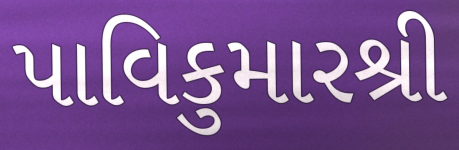
પાવિકુમારશ્રી